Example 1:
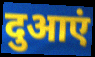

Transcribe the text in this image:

दुआएं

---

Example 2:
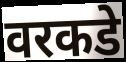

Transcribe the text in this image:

वरकडे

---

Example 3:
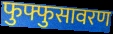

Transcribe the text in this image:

फुफ्फुसावरण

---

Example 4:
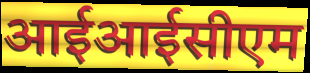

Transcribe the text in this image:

आईआईसीएम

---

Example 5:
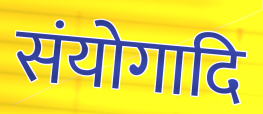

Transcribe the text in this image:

संयोगादि